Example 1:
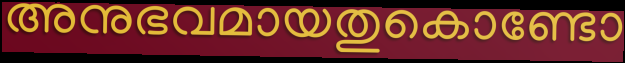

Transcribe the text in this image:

അനുഭവമായതുകൊണ്ടോ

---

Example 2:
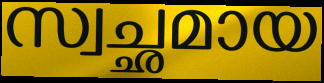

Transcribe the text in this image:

സ്വച്ഛമായ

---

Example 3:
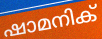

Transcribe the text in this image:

ഷാമനിക്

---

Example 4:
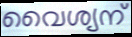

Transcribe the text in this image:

വൈശ്യന്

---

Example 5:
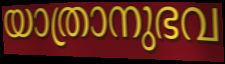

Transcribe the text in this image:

യാത്രാനുഭവ